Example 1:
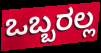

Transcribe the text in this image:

ಒಬ್ಬರಲ್ಲ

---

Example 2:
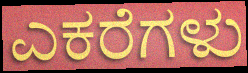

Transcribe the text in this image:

ಎಕರೆಗಳು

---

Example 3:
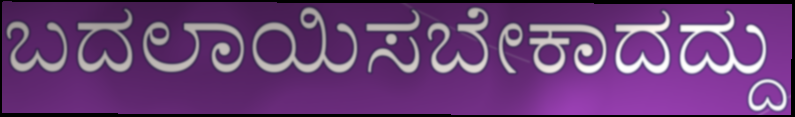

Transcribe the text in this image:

ಬದಲಾಯಿಸಬೇಕಾದದ್ದು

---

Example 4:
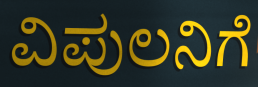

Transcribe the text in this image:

ವಿಪುಲನಿಗೆ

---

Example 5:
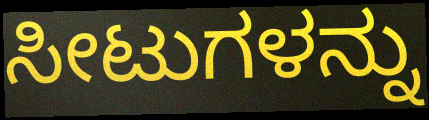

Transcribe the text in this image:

ಸೀಟುಗಳನ್ನು